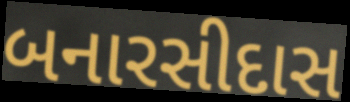
બનારસીદાસ